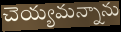
చెయ్యమన్నాను